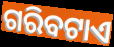
ଗରିବଟାଏ